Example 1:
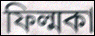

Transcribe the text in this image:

ফিল্মকা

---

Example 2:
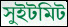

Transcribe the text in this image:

সুইটমিট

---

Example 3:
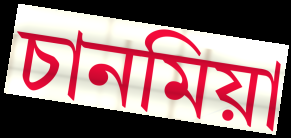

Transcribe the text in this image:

চানমিয়া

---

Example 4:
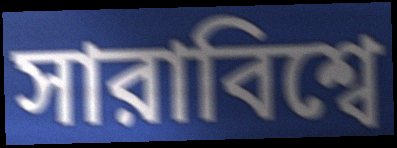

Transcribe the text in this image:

সারাবিশ্বে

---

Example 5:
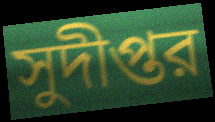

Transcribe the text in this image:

সুদীপ্তর